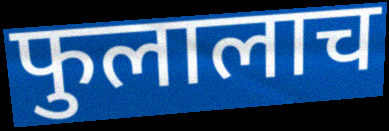
फुलालाच